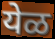
येळ